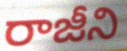
రాజీని